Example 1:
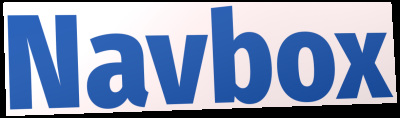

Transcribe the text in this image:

Navbox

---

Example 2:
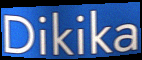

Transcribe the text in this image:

Dikika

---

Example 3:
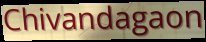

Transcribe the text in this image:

Chivandagaon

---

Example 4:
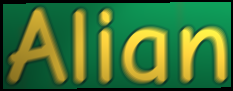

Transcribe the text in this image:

Alian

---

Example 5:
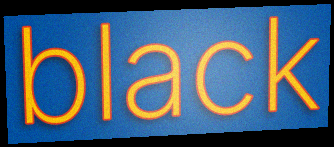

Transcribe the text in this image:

black